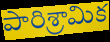
పారిశ్రామిక